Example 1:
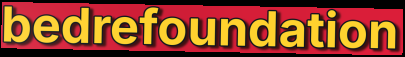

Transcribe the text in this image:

bedrefoundation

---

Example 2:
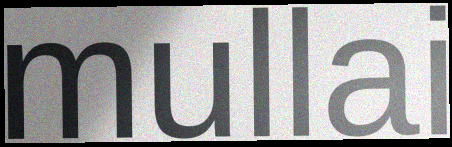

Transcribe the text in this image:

mullai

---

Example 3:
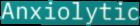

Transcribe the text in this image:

Anxiolytic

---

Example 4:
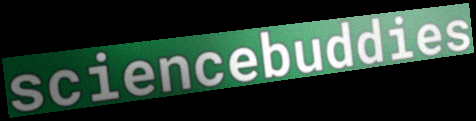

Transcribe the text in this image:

sciencebuddies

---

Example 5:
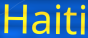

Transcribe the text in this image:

Haiti